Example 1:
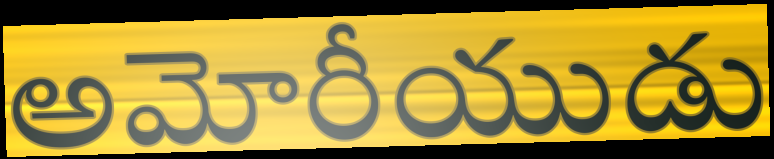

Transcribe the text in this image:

అమోరీయుడు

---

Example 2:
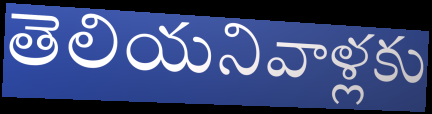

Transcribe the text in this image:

తెలియనివాళ్లకు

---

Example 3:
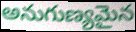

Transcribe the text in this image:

అనుగుణ్యమైన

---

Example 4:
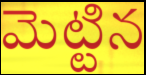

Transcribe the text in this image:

మెట్టిన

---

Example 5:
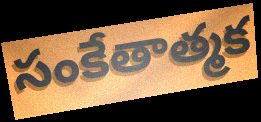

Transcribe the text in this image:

సంకేతాత్మక